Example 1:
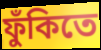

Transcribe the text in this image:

ফুঁকিতে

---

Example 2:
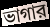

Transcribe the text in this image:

ভাগার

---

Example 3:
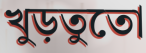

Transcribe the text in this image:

খুড়তুতো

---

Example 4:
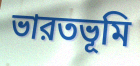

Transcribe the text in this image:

ভারতভূমি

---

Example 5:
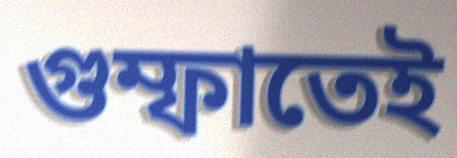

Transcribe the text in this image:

গুম্ফাতেই